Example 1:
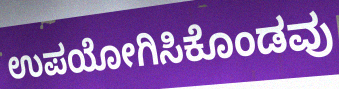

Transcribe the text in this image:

ಉಪಯೋಗಿಸಿಕೊಂಡವು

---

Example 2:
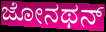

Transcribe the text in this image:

ಜೋನಥನ್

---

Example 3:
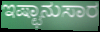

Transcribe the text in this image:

ಇಷ್ಟಾನುಸಾರ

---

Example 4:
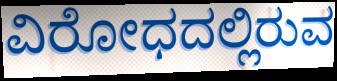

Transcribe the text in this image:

ವಿರೋಧದಲ್ಲಿರುವ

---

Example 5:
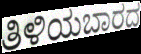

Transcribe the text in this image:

ತಿಳಿಯಬಾರದ